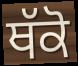
ਥੱਕੋ